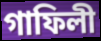
গাফিলী